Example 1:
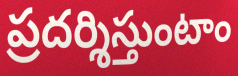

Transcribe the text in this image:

ప్రదర్శిస్తుంటాం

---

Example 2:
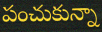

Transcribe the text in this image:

పంచుకున్నా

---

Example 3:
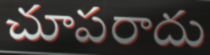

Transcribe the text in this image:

చూపరాదు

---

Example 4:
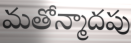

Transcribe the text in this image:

మతోన్మాదపు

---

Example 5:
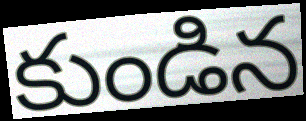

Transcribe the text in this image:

కుండిన